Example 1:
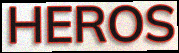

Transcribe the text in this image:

HEROS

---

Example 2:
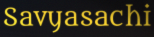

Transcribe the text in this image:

Savyasachi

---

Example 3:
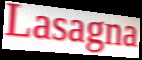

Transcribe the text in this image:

Lasagna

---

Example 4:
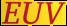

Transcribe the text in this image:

EUV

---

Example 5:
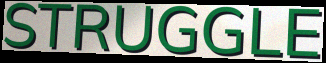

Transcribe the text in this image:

STRUGGLE